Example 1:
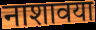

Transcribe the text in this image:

नाशावया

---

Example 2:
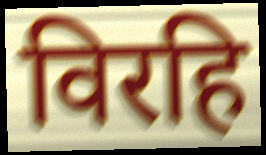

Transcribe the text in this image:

विरहि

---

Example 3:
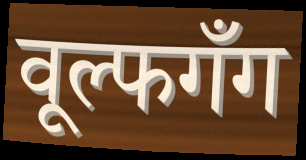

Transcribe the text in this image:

वूल्फगँग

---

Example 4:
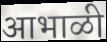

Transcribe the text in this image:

आभाळी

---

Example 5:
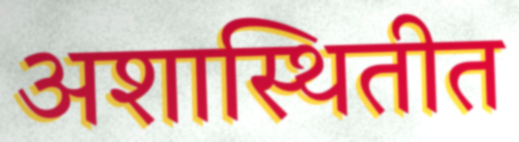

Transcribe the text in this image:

अशास्थितीत